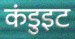
कंडुइट